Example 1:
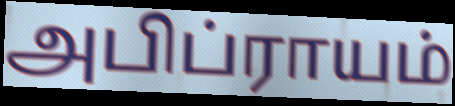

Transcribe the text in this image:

அபிப்ராயம்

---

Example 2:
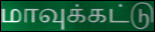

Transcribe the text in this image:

மாவுக்கட்டு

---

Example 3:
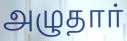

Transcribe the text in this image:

அழுதார்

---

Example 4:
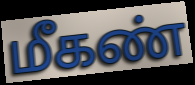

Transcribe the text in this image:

மீகண்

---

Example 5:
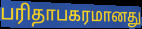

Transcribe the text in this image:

பரிதாபகரமானது